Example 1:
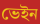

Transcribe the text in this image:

ভেইন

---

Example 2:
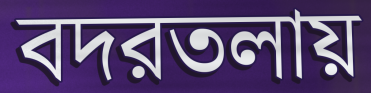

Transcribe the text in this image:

বদরতলায়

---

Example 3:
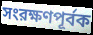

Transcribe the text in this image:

সংরক্ষণপূর্বক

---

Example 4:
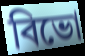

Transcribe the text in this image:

বিভো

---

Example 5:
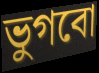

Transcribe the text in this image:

ভুগবো